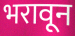
भरावून